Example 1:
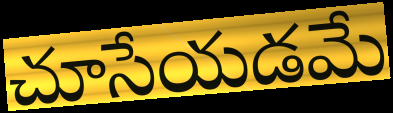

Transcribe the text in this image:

చూసేయడమే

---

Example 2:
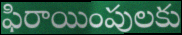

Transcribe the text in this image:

ఫిరాయింపులకు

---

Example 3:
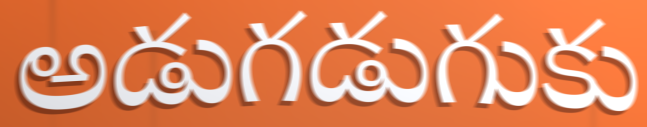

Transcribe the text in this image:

అడుగడుగుకు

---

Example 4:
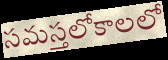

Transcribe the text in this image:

సమస్తలోకాలలో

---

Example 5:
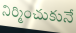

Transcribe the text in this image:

నిర్మించుకునే